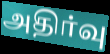
அதிர்வு